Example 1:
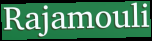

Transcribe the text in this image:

Rajamouli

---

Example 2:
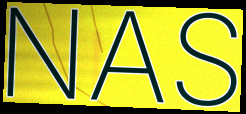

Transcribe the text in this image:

NAS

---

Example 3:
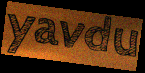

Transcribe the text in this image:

yavdu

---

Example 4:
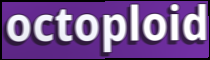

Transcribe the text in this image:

octoploid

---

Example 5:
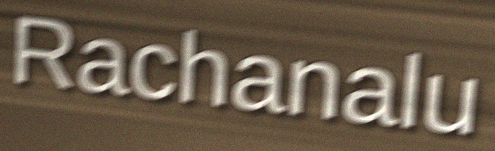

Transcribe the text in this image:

Rachanalu